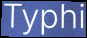
Typhi